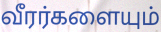
வீரர்களையும்